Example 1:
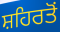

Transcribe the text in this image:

ਸ਼ਹਿਰਤੋਂ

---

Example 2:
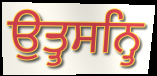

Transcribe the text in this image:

ਉਤ੍ਤਸਨ੍ਤਿ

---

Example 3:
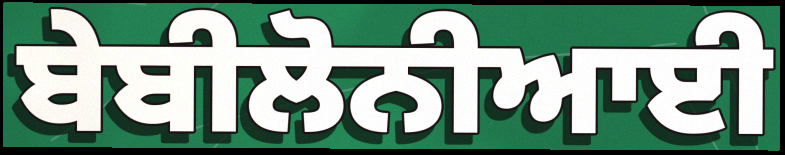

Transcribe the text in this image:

ਬੇਬੀਲੋਨੀਆਈ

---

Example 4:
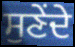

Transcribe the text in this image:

ਸੁਣੇਂਦੇ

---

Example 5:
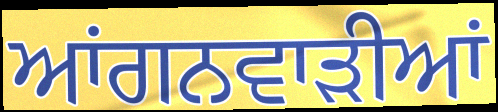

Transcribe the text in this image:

ਆਂਗਨਵਾੜੀਆਂ